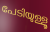
പേടിയുള്ളൂ